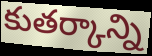
కుతర్కాన్ని